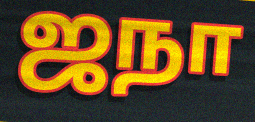
ஜநா